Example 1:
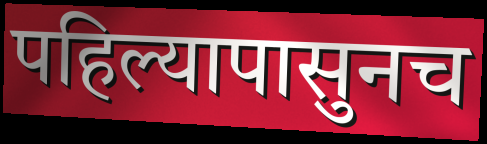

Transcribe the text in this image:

पहिल्यापासुनच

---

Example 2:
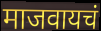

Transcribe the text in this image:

माजवायचं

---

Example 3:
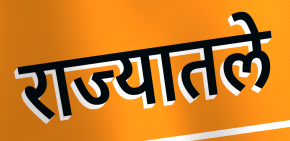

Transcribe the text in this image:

राज्यातले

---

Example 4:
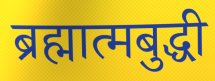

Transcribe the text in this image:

ब्रह्मात्मबुद्धी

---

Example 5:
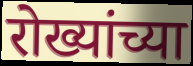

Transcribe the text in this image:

रोख्यांच्या